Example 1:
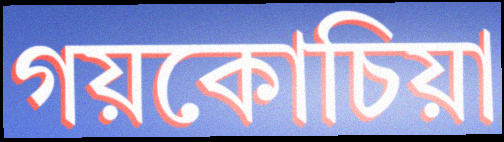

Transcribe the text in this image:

গয়কোচিয়া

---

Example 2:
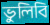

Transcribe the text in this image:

ভুলিবি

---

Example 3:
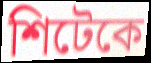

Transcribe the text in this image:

শিটেকে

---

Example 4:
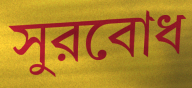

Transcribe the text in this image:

সুরবোধ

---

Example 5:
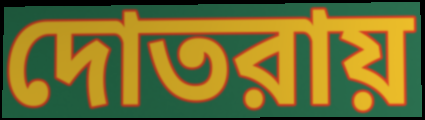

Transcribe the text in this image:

দোতরায়